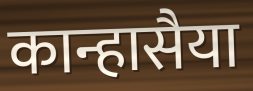
कान्हासैया